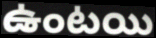
ఉంటయి